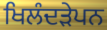
ਖਿਲੰਦੜੇਪਨ